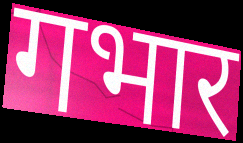
गभार